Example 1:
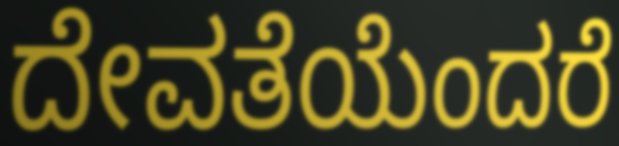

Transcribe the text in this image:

ದೇವತೆಯೆಂದರೆ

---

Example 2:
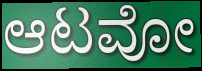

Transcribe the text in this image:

ಆಟವೋ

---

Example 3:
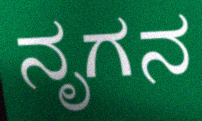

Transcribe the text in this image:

ನೃಗನ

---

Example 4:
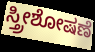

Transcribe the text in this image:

ಸ್ತ್ರೀಶೋಷಣೆ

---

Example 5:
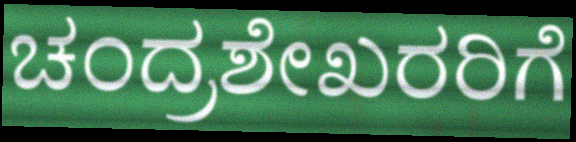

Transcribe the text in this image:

ಚಂದ್ರಶೇಖರರಿಗೆ